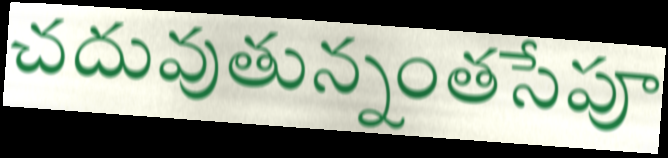
చదువుతున్నంతసేపూ